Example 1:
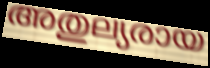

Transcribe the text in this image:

അതുല്യരായ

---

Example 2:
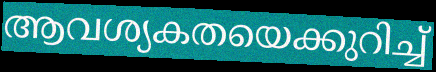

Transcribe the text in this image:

ആവശ്യകതയെക്കുറിച്ച്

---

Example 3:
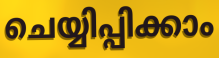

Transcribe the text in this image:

ചെയ്യിപ്പിക്കാം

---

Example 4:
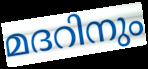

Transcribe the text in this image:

മദറിനും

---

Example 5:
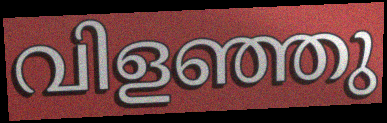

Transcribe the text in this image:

വിളഞ്ഞു